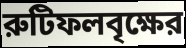
রুটিফলবৃক্ষের